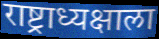
राष्ट्राध्यक्षाला